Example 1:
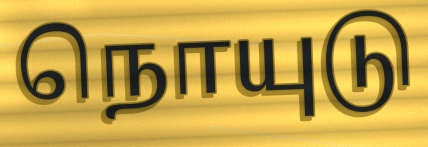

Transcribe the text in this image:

நொயுடு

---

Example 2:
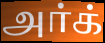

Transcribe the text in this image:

அர்க்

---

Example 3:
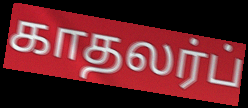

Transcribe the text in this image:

காதலர்ப்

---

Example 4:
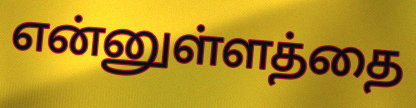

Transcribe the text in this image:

என்னுள்ளத்தை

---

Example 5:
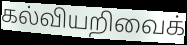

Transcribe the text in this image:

கல்வியறிவைக்